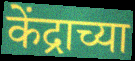
केंद्राच्या